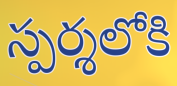
స్పర్శలోకి